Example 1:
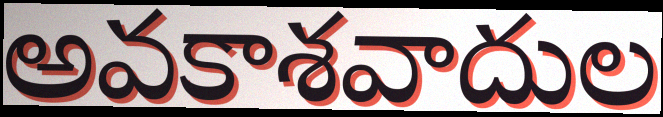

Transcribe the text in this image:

అవకాశవాదుల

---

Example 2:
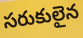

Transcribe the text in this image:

సరుకులైన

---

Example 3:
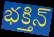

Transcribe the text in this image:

భక్తిన్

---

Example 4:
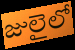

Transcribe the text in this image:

జులైలో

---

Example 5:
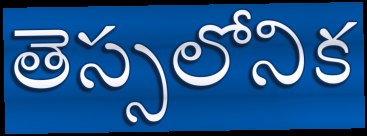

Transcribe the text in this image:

తెస్సలోనిక